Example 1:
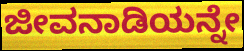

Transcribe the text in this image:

ಜೀವನಾಡಿಯನ್ನೇ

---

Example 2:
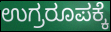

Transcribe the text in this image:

ಉಗ್ರರೂಪಕ್ಕೆ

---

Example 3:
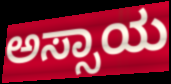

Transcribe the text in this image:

ಅಸ್ಸಾಯ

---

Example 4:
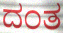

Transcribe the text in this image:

ದಂತ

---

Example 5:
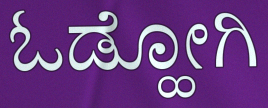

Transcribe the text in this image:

ಓಡ್ಹೋಗಿ